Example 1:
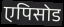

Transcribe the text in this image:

एपिसोड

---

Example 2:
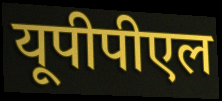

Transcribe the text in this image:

यूपीपीएल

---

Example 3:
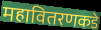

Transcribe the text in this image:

महावितरणकडे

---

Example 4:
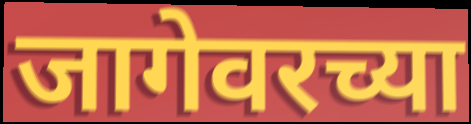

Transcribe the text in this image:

जागेवरच्या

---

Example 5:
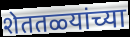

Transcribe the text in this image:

शेततळ्यांच्या